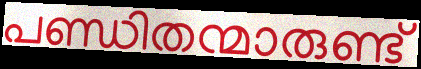
പണ്ഡിതന്മാരുണ്ട്